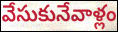
వేసుకునేవాళ్లం